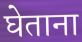
घेताना